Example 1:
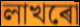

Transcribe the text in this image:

লাখৰো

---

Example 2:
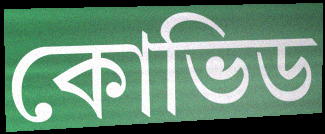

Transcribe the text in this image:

কোভিড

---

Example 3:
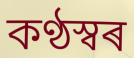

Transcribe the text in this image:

কণ্ঠস্বৰ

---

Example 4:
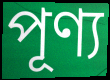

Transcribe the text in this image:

পূণ্য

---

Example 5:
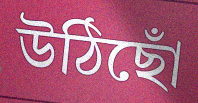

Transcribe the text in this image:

উঠিছোঁ